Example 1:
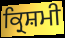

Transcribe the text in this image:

ਕ੍ਰਿਸ਼ਮੀ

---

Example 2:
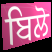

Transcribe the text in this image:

ਬਿਲੋ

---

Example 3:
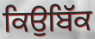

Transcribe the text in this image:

ਕਿਉਬਿੱਕ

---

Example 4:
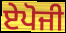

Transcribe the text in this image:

ਏਪੋਜੀ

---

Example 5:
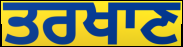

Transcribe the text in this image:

ਤਰਖਾਣ